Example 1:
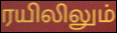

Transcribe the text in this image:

ரயிலிலும்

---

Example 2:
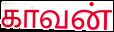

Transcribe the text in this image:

காவன்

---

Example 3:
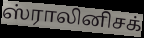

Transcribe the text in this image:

ஸ்ராலினிசக்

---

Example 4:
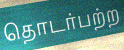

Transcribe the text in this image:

தொடர்பற்ற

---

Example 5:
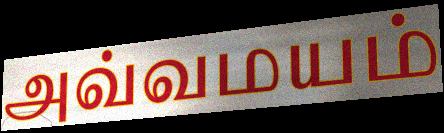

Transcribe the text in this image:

அவ்வமயம்